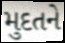
મુદતને